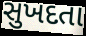
સુખદતા